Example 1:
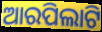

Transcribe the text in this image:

ଆରପିଲାଟି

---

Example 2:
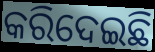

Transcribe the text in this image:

କରିଦେଇଛି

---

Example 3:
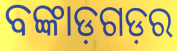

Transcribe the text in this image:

ବଙ୍କାଡ଼ଗଡ଼ର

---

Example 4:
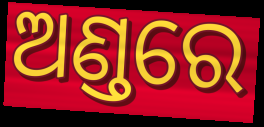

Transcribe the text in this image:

ଅଣ୍ଡରେ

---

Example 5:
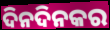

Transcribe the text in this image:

ଦିନଦିନକର